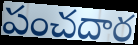
పంచదార